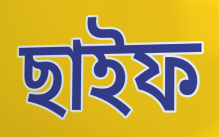
ছাইফ